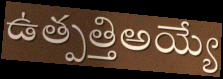
ఉత్పత్తిఅయ్యే